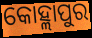
କୋହ୍ଲାପୁର